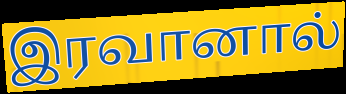
இரவானால்